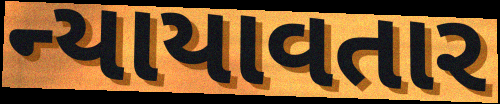
ન્યાયાવતાર